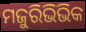
ମଜୁରିଭିଭିକ